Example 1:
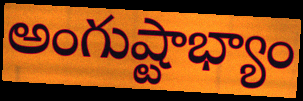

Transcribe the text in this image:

అంగుష్టాభ్యాం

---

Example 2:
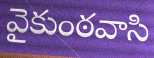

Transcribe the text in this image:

వైకుంఠవాసి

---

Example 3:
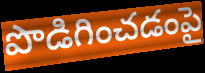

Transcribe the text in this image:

పొడిగించడంపై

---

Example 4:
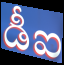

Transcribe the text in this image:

డీఐ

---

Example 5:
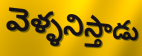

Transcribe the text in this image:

వెళ్ళనిస్తాడు